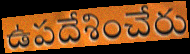
ఉపదేశించేరు